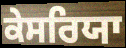
ਕੇਸਰਿਯਾ